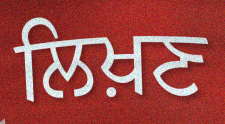
ਲਿਖ਼ਣ